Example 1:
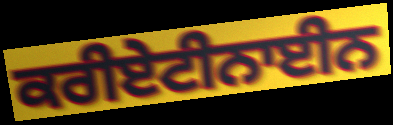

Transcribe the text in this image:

ਕਰੀਏਟੀਨਾਈਨ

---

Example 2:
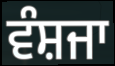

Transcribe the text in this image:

ਵੰਸ਼ਜਾ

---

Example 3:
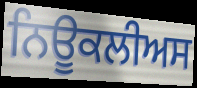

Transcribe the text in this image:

ਨਿਊਕਲੀਅਸ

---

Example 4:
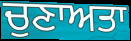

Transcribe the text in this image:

ਚੁਣਾਅਤਾ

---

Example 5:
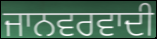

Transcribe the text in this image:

ਜਾਨਵਰਵਾਦੀ